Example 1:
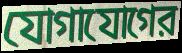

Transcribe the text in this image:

যোগাযোগের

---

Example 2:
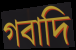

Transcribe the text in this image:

গবাদি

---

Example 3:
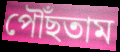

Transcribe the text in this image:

পৌঁছতাম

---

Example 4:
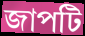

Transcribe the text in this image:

জাপটি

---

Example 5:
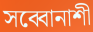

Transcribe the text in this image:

সব্বোনাশী